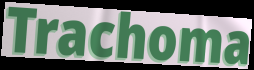
Trachoma